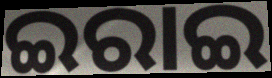
ଇରାଇ